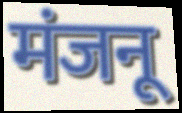
मंजनू